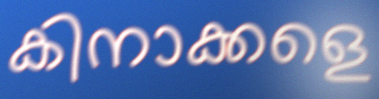
കിനാക്കളെ